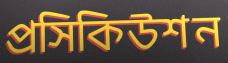
প্রসিকিউশন